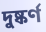
দুষ্কর্ণ